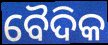
ବୈଦିକ